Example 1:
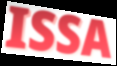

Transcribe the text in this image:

ISSA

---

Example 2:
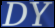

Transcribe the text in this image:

DY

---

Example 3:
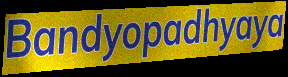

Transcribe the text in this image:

Bandyopadhyaya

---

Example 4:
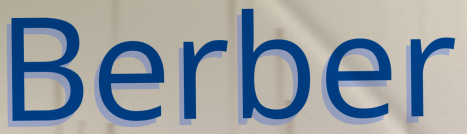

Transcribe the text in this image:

Berber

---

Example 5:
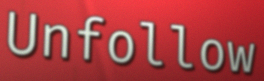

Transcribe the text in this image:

Unfollow